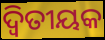
ଦ୍ୱିତୀୟକ